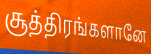
சூத்திரங்களானே